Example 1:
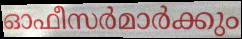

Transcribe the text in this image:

ഓഫീസർമാർക്കും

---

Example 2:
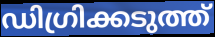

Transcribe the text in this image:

ഡിഗ്രിക്കടുത്ത്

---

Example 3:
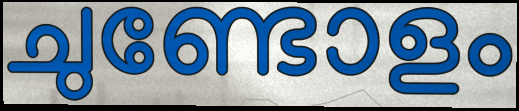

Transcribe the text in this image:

ചുണ്ടോളം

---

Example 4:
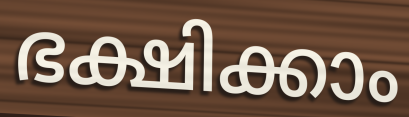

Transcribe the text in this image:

ഭക്ഷിക്കാം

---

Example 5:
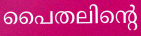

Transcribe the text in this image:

പൈതലിന്റെ